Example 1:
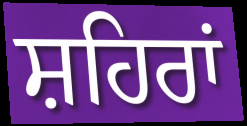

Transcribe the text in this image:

ਸ਼ਹਿਰਾਂ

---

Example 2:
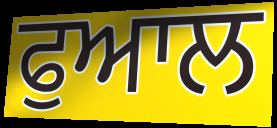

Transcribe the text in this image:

ਫੁਆਲ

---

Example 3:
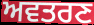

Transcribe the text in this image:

ਅਵਤਰਣ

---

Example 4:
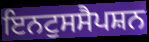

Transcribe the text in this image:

ਇਨਟੁਸਸੈਪਸ਼ਨ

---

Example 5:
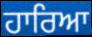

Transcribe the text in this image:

ਹਾਰਿਆ